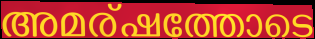
അമര്ഷത്തോടെ